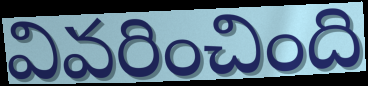
వివరించింది